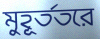
মুহূর্ততরে